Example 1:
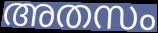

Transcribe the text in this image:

അതസം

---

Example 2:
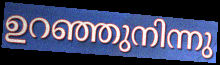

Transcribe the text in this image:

ഉറഞ്ഞുനിന്നു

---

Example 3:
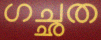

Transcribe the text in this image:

ഗച്ഛത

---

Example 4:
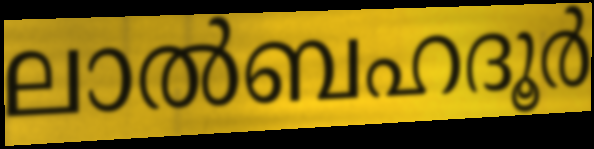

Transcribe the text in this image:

ലാൽബഹദൂർ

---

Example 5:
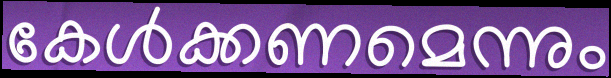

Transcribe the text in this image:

കേൾക്കണമെന്നും